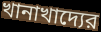
খানাখাদ্যের